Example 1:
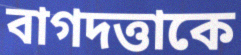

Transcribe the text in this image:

বাগদত্তাকে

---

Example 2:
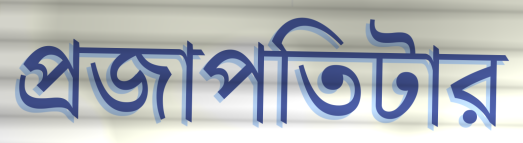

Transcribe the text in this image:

প্রজাপতিটার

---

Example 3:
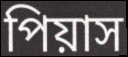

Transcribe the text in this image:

পিয়াস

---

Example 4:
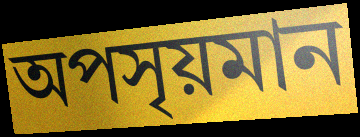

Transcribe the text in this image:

অপসৃয়মান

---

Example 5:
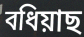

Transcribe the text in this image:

বধিয়াছ